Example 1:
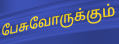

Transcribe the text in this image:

பேசுவோருக்கும்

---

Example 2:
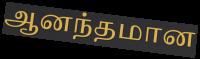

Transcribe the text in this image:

ஆனந்தமான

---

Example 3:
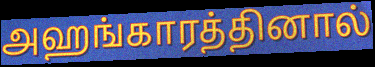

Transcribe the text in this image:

அஹங்காரத்தினால்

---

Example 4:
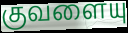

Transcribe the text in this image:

குவளையு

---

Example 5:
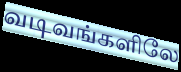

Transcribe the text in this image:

வடிவங்களிலே